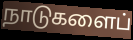
நாடுகளைப்